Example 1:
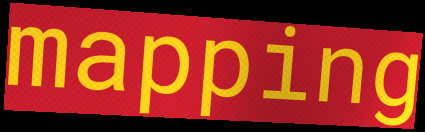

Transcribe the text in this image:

mapping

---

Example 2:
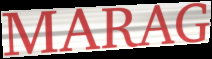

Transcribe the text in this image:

MARAG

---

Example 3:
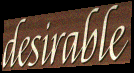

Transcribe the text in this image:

desirable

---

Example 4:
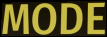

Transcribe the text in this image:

MODE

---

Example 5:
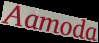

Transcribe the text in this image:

Aamoda